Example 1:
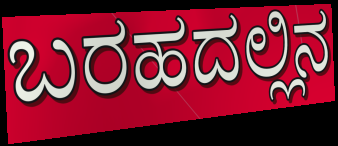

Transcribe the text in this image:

ಬರಹದಲ್ಲಿನ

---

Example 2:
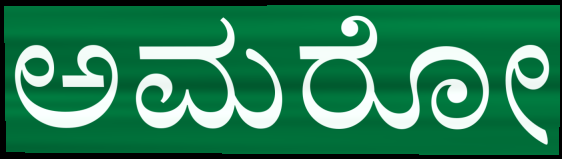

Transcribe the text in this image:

ಅಮರೋ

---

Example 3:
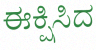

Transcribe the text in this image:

ಈಕ್ಷಿಸಿದ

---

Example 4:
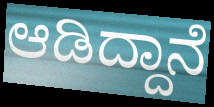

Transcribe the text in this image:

ಆಡಿದ್ದಾನೆ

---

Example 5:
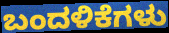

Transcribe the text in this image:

ಬಂದಳಿಕೆಗಳು